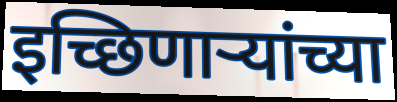
इच्छिणार्‍यांच्या